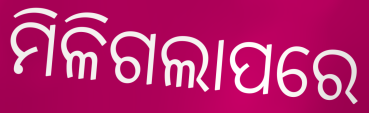
ମିଳିଗଲାପରେ